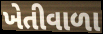
ખેતીવાળા